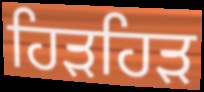
ਹਿੜਹਿੜ